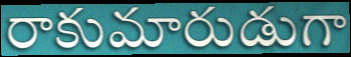
రాకుమారుడుగా